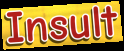
Insult